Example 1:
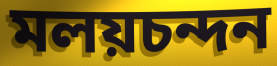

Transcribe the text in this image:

মলয়চন্দন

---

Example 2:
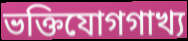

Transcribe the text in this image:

ভক্তিযোগগাখ্য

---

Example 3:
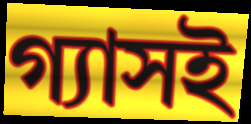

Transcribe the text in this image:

গ্যাসই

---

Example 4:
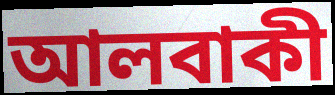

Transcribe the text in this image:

আলবাকী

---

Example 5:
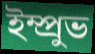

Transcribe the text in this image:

ইম্প্রুভ